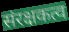
संरक्षकत्व